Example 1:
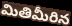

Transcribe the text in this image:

మితిమీరిన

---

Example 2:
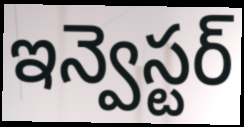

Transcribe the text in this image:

ఇన్వెస్టర్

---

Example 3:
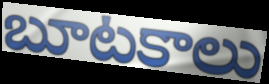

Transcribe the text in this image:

బూటకాలు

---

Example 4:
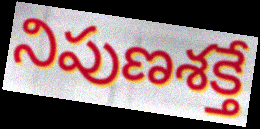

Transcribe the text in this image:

నిపుణశక్తే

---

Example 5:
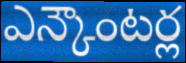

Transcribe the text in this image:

ఎన్కౌంటర్ల